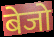
बेजो